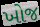
ખોજ